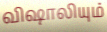
விஷாலியும்